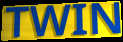
TWIN